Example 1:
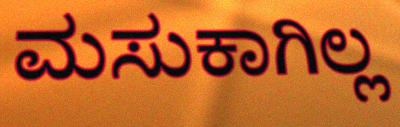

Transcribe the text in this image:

ಮಸುಕಾಗಿಲ್ಲ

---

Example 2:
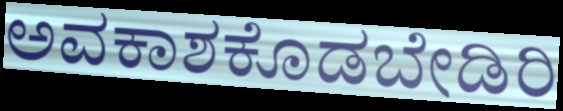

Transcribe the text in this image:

ಅವಕಾಶಕೊಡಬೇಡಿರಿ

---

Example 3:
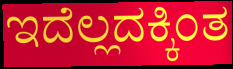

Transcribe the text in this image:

ಇದೆಲ್ಲದಕ್ಕಿಂತ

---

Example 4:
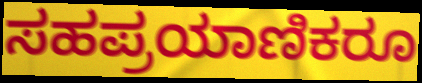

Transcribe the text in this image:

ಸಹಪ್ರಯಾಣಿಕರೂ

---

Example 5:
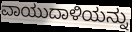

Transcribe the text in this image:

ವಾಯುದಾಳಿಯನ್ನು